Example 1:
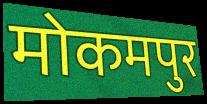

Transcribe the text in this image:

मोकमपुर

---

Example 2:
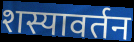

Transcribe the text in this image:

शस्यावर्तन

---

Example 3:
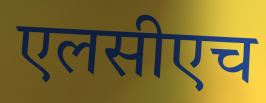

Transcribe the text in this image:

एलसीएच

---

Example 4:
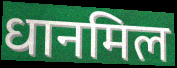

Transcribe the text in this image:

धानमिल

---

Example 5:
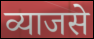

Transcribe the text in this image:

व्याजसे